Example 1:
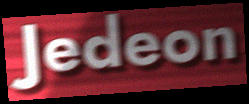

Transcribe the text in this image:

Jedeon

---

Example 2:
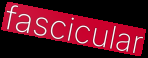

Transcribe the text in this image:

fascicular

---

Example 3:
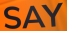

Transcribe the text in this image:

SAY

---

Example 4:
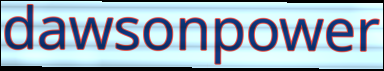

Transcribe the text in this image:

dawsonpower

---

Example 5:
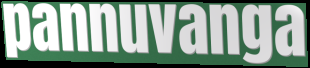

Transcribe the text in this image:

pannuvanga